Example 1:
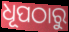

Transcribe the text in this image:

ଧୂପଠାରୁ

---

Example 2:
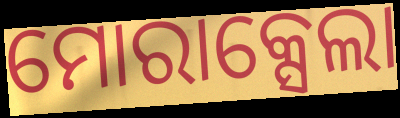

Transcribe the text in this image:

ମୋରାକ୍ସେଲା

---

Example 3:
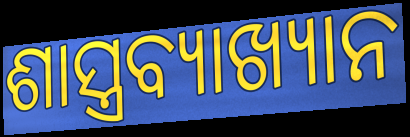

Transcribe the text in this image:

ଶାସ୍ତ୍ରବ୍ୟାଖ୍ୟାନ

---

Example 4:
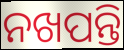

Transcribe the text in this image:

ନଖପନ୍ତି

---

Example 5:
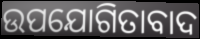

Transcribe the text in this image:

ଉପଯୋଗିତାବାଦ